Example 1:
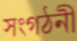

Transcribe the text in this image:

সংগঠনী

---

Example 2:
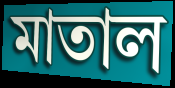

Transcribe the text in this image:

মাতাল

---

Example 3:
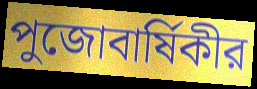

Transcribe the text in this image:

পুজোবার্ষিকীর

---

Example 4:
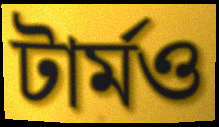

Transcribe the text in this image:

টার্মও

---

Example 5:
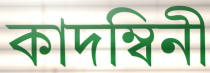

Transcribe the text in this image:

কাদম্বিনী